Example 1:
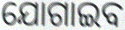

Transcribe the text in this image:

ଯୋଗାଇବ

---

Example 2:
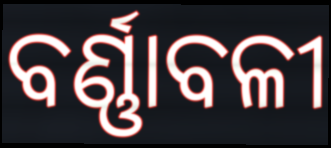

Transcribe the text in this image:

ବର୍ଣ୍ଣାବଳୀ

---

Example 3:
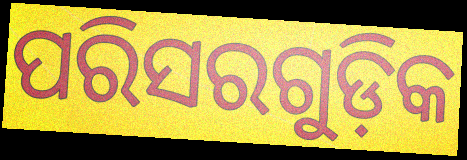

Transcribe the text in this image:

ପରିସରଗୁଡ଼ିକ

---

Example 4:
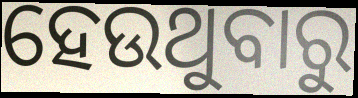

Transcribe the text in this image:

ହେଉଥୁବାରୁ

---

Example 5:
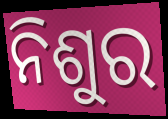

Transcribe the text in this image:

ନିଶୁର